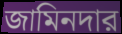
জামিনদার